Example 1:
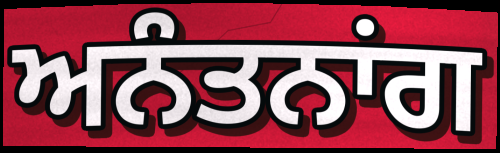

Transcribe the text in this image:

ਅਨੰਤਨਾਂਗ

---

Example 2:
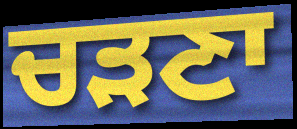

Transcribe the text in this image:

ਚੜਣਾ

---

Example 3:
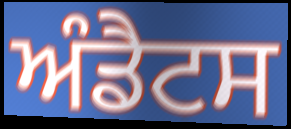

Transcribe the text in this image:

ਅੰਡੈਟਸ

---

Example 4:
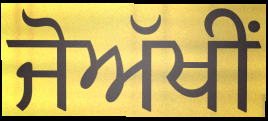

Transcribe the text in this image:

ਜੋਅੱਖੀਂ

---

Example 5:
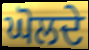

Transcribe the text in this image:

ਘੋਲਦੇ